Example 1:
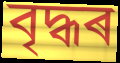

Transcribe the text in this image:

বৃদ্ধৰ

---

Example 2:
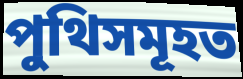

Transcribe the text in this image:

পুথিসমূহত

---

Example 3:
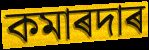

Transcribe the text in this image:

কমাৰদাৰ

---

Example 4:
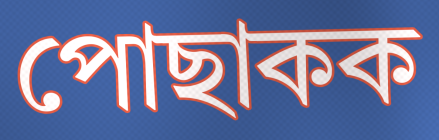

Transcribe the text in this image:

পোছাকক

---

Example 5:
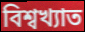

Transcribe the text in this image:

বিশ্বখ্যাত